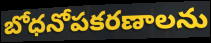
బోధనోపకరణాలను